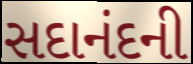
સદાનંદની